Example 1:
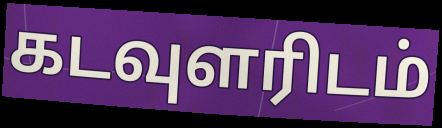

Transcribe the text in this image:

கடவுளரிடம்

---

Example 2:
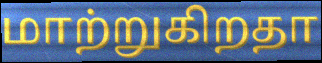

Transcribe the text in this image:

மாற்றுகிறதா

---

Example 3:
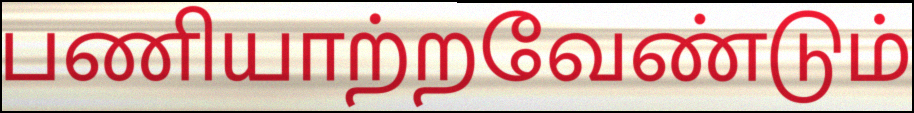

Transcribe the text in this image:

பணியாற்றவேண்டும்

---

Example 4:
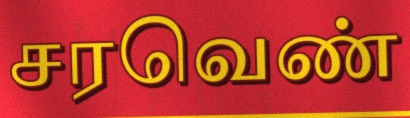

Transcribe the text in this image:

சரவெண்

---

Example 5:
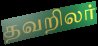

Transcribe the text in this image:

தவறிலர்